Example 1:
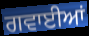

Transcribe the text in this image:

ਗਵਾਈਆਂ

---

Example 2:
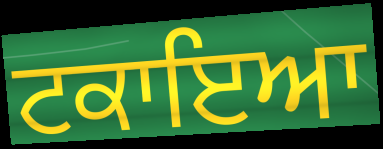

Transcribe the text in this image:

ਟਕਾਇਆ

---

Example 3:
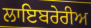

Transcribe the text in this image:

ਲਾਇਬਰੇਰੀਅ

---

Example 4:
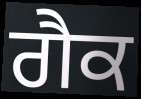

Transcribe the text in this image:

ਗੈਕ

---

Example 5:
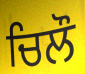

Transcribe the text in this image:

ਚਿਲੌ